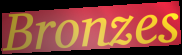
Bronzes